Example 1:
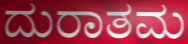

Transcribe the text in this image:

ದುರಾತಮ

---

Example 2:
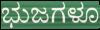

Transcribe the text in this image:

ಭುಜಗಳೂ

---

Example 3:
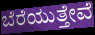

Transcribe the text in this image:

ಬೆರೆಯುತ್ತೇವೆ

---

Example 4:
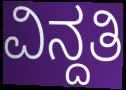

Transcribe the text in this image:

ವಿನ್ದತಿ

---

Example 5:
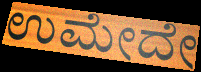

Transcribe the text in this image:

ಉಮೇದೇ